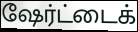
ஷேர்ட்டைக்